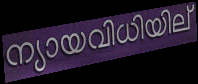
ന്യായവിധിയില്